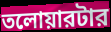
তলোয়ারটার